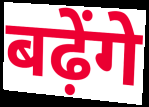
बढ़ेंगे